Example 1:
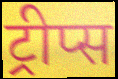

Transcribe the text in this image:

ट्रीप्स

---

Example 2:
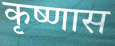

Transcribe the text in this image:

कृष्णास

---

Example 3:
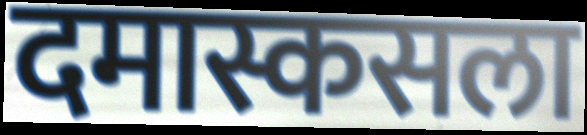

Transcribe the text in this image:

दमास्कसला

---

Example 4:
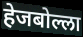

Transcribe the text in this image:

हेजबोल्ला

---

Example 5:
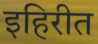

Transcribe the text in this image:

इहिरीत